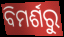
ବିମର୍ଶରୁ